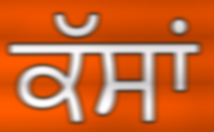
ਕੱਸਾਂ